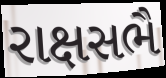
રાક્ષસભૈ